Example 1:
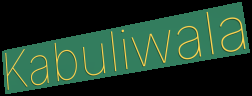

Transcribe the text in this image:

Kabuliwala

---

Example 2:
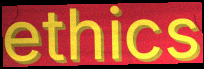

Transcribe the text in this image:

ethics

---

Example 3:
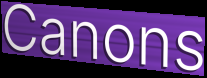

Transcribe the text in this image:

Canons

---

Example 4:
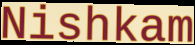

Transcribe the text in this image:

Nishkam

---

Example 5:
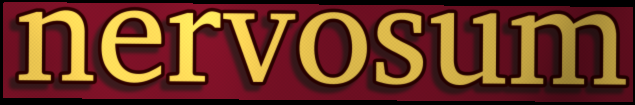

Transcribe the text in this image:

nervosum